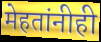
मेहतांनीही